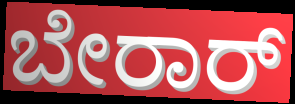
ಬೇರಾರ್